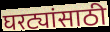
घरट्यांसाठी